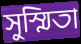
সুস্মিতা